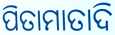
ପିତାମାତାଦି